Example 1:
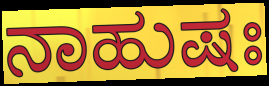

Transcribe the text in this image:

ನಾಹುಷಃ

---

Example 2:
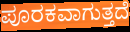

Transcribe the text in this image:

ಪೂರಕವಾಗುತ್ತದೆ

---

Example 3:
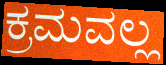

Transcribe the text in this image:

ಕ್ರಮವಲ್ಲ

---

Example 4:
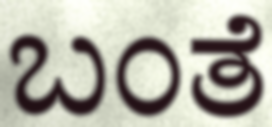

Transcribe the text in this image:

ಬಂತೆ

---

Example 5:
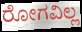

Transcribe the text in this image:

ರೋಗವಿಲ್ಲ